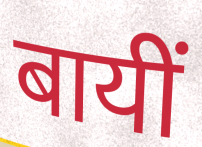
बायीं